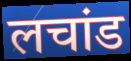
लचांड